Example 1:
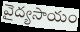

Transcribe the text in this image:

వైద్యసాయం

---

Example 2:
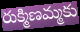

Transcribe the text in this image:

రుక్మిణమ్మకు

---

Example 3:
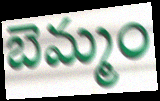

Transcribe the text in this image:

బెమ్మం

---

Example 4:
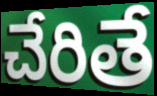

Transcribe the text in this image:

చేరితే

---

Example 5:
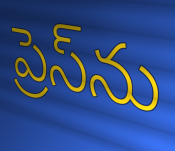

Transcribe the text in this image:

ప్రెస్‌ను